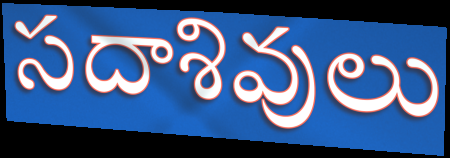
సదాశివులు